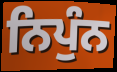
ਨਿਪੁੰਨ